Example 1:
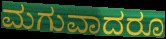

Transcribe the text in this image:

ಮಗುವಾದರೂ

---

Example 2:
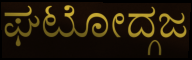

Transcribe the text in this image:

ಘಟೋದ್ಗಜ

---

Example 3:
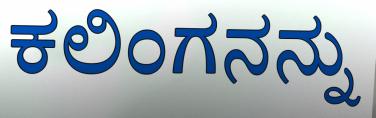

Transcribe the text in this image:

ಕಲಿಂಗನನ್ನು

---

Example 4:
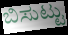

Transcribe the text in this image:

ಬಿಸುಟ್ಟು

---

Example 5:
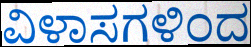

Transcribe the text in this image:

ವಿಳಾಸಗಳಿಂದ